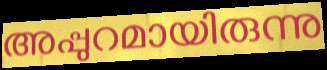
അപ്പുറമായിരുന്നു